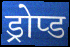
ड्रोप्ड